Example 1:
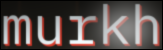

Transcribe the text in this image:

murkh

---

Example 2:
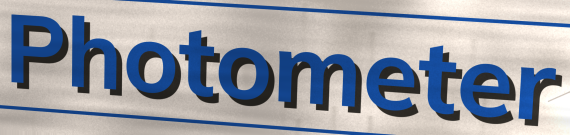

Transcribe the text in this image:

Photometer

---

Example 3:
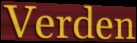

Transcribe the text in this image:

Verden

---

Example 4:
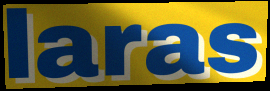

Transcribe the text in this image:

laras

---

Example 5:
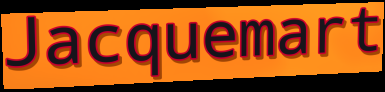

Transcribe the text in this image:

Jacquemart